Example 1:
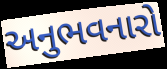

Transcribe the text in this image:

અનુભવનારો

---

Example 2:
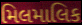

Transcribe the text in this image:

મિલમાલિક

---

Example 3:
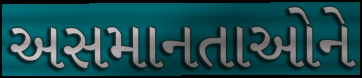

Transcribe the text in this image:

અસમાનતાઓને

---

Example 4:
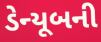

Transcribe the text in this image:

ડેન્યૂબની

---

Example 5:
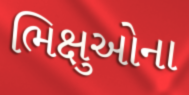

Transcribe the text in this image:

ભિક્ષુઓના